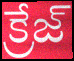
క్రేజ్